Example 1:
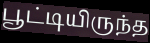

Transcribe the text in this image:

பூட்டியிருந்த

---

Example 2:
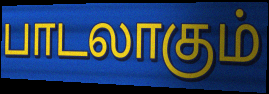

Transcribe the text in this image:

பாடலாகும்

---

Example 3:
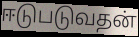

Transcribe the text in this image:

ஈடுபடுவதன்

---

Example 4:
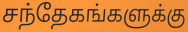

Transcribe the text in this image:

சந்தேகங்களுக்கு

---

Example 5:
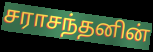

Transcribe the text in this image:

சராசந்தனின்